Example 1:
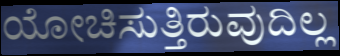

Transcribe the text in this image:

ಯೋಚಿಸುತ್ತಿರುವುದಿಲ್ಲ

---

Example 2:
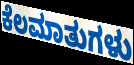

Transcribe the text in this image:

ಕೆಲಮಾತುಗಳು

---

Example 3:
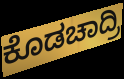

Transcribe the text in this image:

ಕೊಡಚಾದ್ರಿ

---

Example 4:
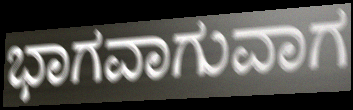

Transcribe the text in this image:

ಭಾಗವಾಗುವಾಗ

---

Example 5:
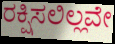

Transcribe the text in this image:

ರಕ್ಷಿಸಲಿಲ್ಲವೇ